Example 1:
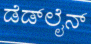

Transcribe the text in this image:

ಡೆಡ್‍ಲೈನ್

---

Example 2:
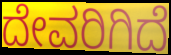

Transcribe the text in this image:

ದೇವರಿಗಿದೆ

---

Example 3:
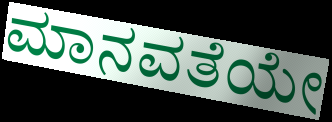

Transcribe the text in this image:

ಮಾನವತೆಯೇ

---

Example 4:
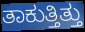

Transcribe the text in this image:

ತಾಕುತ್ತಿತ್ತು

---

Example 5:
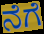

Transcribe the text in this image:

ನೆಗೆ